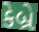
કેબ્રે